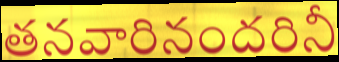
తనవారినందరినీ